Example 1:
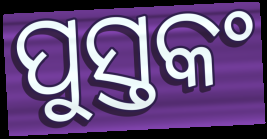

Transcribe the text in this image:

ପୁସ୍ତକଂ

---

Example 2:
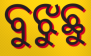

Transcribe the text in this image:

ବୁଝୁଛୁ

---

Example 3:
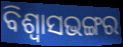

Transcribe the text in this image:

ବିଶ୍ଵାସଭଙ୍ଗର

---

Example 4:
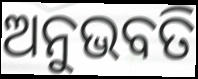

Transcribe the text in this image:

ଅନୁଭବତି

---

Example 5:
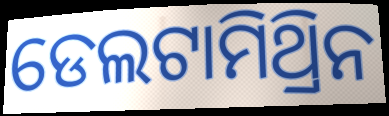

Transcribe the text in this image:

ଡେଲଟାମିଥ୍ରିନ